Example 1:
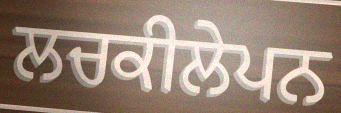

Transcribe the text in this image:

ਲਚਕੀਲੇਪਨ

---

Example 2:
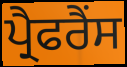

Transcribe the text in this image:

ਪ੍ਰੈਫਰੈਂਸ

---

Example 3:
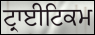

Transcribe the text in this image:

ਟ੍ਰਾਈਟਿਕਮ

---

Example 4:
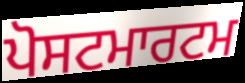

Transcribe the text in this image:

ਪੋਸਟਮਾਰਟਮ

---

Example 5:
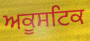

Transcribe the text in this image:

ਅਕੂਸਟਿਕ